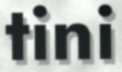
tini